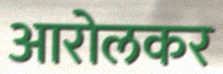
आरोलकर